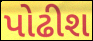
પોઢીશ